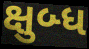
ક્ષુબ્ધ